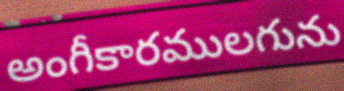
అంగీకారములగును